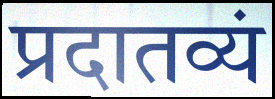
प्रदातव्यं